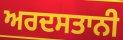
ਅਰਦਸਤਾਨੀ